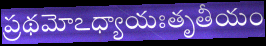
ప్రథమోఽధ్యాయఃతృతీయం